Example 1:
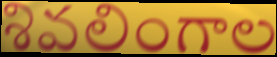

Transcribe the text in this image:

శివలింగాల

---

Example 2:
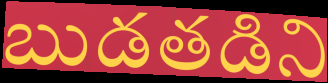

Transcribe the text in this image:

బుడతడిని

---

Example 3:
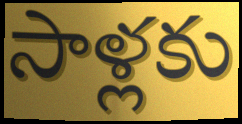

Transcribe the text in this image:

సాళ్లకు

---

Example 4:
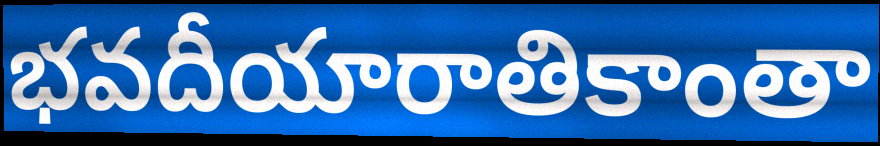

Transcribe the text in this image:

భవదీయారాతికాంతా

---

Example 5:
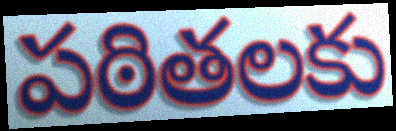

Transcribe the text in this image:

పఠితలకు